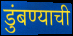
डुंबण्याची